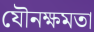
যৌনক্ষমতা